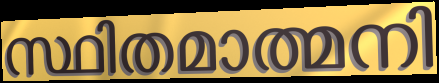
സ്ഥിതമാത്മനി